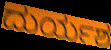
ದುರ್ಯಶ